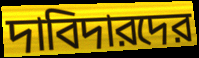
দাবিদারদের